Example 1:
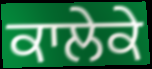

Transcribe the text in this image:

ਕਾਲੇਕੇ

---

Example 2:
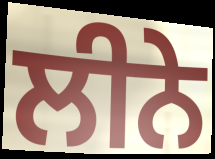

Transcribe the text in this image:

ਲੀਨੇ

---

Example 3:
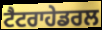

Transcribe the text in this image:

ਟੈਟਰਾਹੇਡਰਲ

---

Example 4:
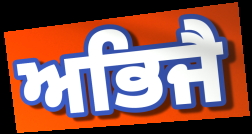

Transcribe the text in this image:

ਅਭਿਜੈ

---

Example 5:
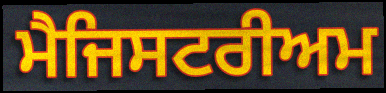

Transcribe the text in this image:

ਮੈਜਿਸਟਰੀਅਮ